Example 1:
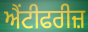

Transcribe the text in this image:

ਐਂਟੀਫਰੀਜ਼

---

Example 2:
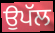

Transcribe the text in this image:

ਉਪੱਲ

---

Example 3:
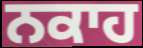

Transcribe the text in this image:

ਨਕਾਹ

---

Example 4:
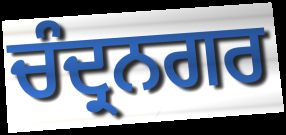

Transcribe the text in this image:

ਚੰਦ੍ਰਨਗਰ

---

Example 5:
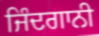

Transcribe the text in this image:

ਜਿੰਦਗਾਨੀ